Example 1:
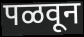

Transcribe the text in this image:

पळवून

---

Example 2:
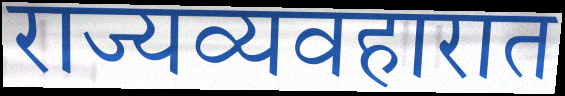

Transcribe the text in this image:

राज्यव्यवहारात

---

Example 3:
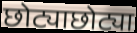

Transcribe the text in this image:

छोट्याछोट्या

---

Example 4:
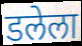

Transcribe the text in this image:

डलेला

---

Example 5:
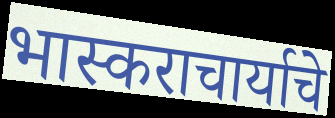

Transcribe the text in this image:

भास्कराचार्याचे